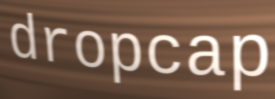
dropcap